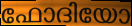
ഫോദിയോ